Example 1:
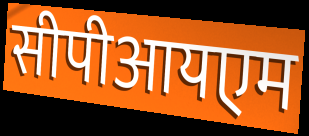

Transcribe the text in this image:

सीपीआयएम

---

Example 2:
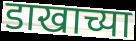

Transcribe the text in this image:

डाखाच्या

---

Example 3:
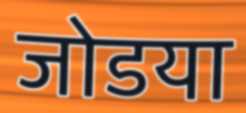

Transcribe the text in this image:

जोडया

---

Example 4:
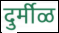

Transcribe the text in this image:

दुर्मीळ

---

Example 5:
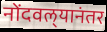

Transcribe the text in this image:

नोंदवल्यानंतर